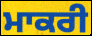
ਮਾਕਰੀ